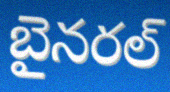
బైనరల్